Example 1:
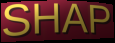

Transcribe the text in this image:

SHAP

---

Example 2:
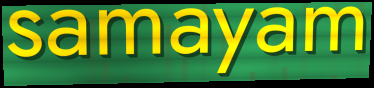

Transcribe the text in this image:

samayam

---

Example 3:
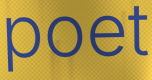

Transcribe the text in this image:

poet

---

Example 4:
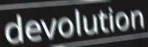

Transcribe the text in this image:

devolution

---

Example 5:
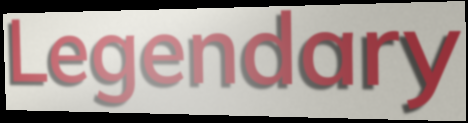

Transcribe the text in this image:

Legendary